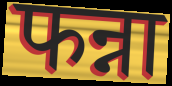
फन्ना